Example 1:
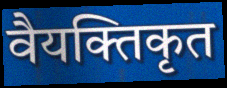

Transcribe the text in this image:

वैयक्तिकृत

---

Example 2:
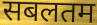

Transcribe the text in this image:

सबलतम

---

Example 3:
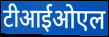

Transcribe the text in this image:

टीआईओएल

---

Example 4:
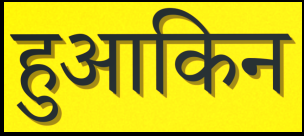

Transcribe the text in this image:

हुआकिन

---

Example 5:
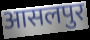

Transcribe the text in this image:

आसलपुर